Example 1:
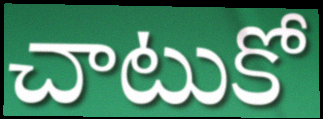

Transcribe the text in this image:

చాటుకో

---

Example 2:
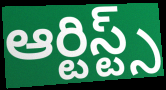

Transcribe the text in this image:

ఆర్టిస్ట్స్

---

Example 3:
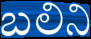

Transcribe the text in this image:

బలిని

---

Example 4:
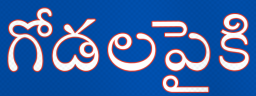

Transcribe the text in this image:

గోడలపైకి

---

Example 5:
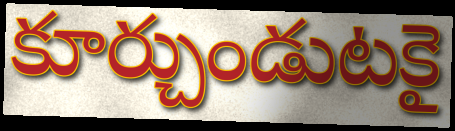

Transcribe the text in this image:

కూర్చుండుటకై